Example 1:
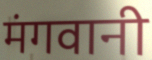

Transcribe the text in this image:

मंगवानी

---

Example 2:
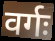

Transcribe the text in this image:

वर्गः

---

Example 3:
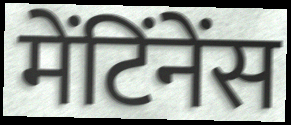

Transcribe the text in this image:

मेंटिंनेंस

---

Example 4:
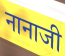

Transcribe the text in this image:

नानाजी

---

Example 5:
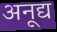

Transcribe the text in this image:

अनूद्य